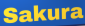
Sakura